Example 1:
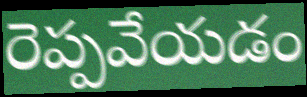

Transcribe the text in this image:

రెప్పవేయడం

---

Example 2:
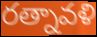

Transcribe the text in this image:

రత్నావళి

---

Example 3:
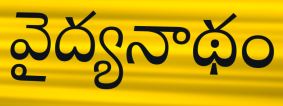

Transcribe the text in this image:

వైద్యనాథం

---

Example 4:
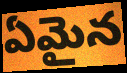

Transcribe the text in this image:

ఏమైన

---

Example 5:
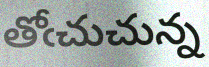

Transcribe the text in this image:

తోఁచుచున్న